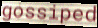
gossiped